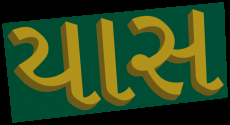
યાસ